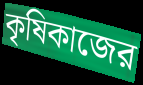
কৃষিকাজের